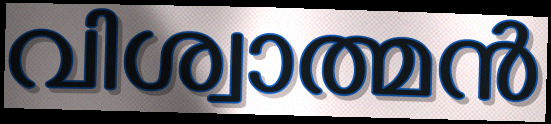
വിശ്വാത്മൻ